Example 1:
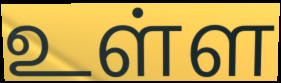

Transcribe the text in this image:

உள்ள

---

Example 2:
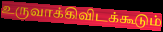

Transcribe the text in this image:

உருவாக்கிவிடக்கூடும்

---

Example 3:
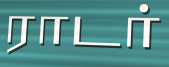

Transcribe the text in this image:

ராடர்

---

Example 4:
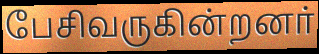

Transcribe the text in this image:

பேசிவருகின்றனர்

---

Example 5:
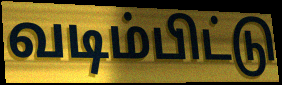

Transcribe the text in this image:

வடிம்பிட்டு